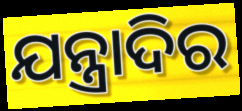
ଯନ୍ତ୍ରାଦିର